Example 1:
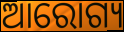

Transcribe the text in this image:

ଆରୋଗ୍ଯ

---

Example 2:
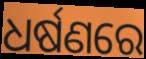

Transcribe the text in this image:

ଧର୍ଷଣରେ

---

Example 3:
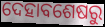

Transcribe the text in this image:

ଦେହାବଶେଷରୁ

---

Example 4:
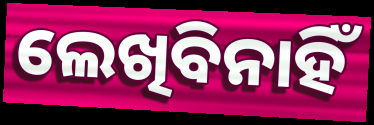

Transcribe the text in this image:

ଲେଖିବିନାହିଁ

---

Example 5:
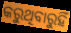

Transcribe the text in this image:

କରୁଥିବାରୁହିଁ